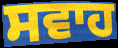
ਸਵਾਹ